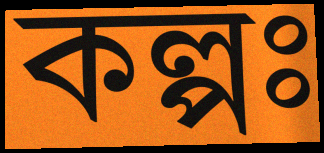
কল্পঃ